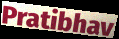
Pratibhav